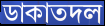
ডাকাতদল